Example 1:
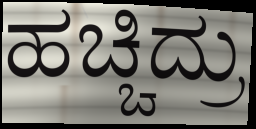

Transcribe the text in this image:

ಹಚ್ಚಿದ್ರು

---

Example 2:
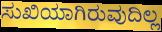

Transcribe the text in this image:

ಸುಖಿಯಾಗಿರುವುದಿಲ್ಲ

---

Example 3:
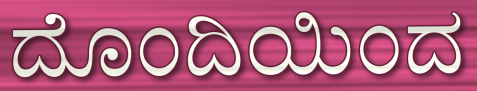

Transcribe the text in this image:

ದೊಂದಿಯಿಂದ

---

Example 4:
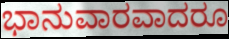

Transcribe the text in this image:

ಭಾನುವಾರವಾದರೂ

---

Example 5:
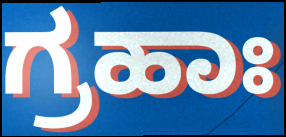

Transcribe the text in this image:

ಗ್ರಹಾಃ